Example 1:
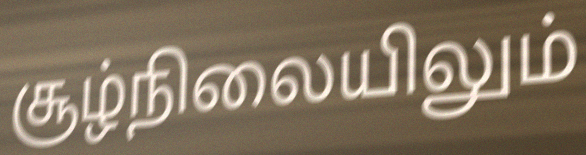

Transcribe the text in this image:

சூழ்நிலையிலும்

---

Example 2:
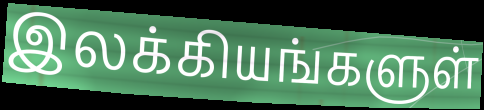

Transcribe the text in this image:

இலக்கியங்களுள்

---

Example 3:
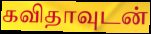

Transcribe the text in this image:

கவிதாவுடன்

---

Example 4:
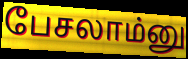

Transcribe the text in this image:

பேசலாம்னு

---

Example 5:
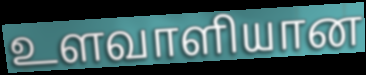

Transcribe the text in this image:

உளவாளியான